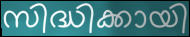
സിദ്ധിക്കായി